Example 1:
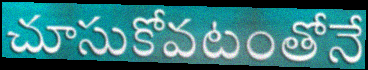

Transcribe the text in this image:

చూసుకోవటంతోనే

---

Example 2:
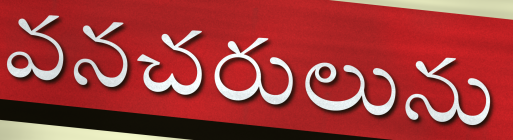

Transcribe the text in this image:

వనచరులును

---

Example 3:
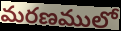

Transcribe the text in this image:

మరణములో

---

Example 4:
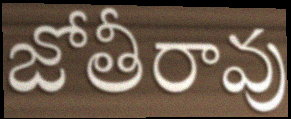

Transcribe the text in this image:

జోతీరావు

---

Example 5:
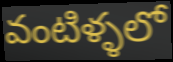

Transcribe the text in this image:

వంటిళ్ళలో